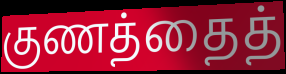
குணத்தைத்